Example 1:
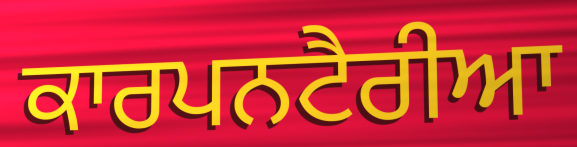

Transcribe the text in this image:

ਕਾਰਪਨਟੈਰੀਆ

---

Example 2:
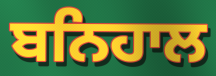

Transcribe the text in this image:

ਬਨਿਹਾਲ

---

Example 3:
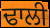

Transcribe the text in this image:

ਢਾਲੀ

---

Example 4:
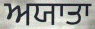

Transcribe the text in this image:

ਅਯਾਤਾ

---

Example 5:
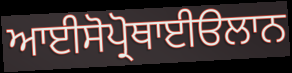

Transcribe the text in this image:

ਆਈਸੋਪ੍ਰੋਥਾਈੳਲਾਨ